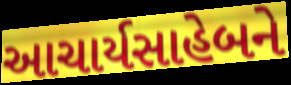
આચાર્યસાહેબને